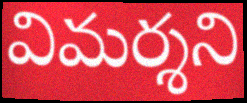
విమర్శని